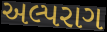
અલ્પરાગ